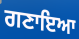
ਗਣਾਇਆ